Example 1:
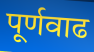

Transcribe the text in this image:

पूर्णवाढ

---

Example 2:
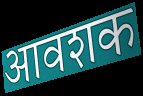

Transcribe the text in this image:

आवशक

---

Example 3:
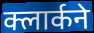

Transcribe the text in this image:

क्लार्कने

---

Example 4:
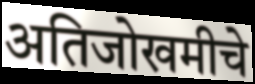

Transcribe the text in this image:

अतिजोखमीचे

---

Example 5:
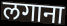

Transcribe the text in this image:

लगाना